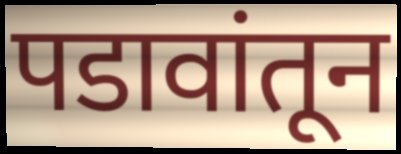
पडावांतून